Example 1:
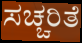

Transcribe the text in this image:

ಸಚ್ಚರಿತೆ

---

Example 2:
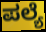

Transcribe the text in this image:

ಪಲ್ಯೆ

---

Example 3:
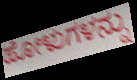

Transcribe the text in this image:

ಹೋಳುಗಳನ್ನು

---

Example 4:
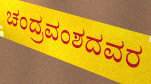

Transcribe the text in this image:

ಚಂದ್ರವಂಶದವರ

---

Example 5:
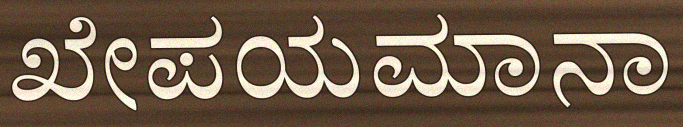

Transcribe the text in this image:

ಖೇಪಯಮಾನಾ